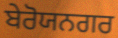
ਬੇਰੋਯਨਗਰ